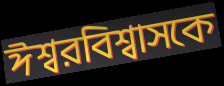
ঈশ্বরবিশ্বাসকে